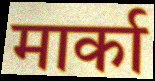
मार्का